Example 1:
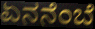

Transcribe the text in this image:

ಏನನೆಂಬೆ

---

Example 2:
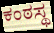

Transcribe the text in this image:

ಕಂಠಸ್ಥ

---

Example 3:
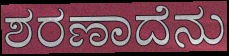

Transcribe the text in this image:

ಶರಣಾದೆನು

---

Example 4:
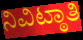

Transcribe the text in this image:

ನಿವಿಟ್ಠಾತಿ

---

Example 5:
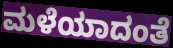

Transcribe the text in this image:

ಮಳೆಯಾದಂತೆ